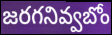
జరగనివ్వబోం